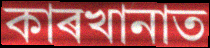
কাৰখানাত